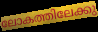
ലോകത്തിലേക്കു